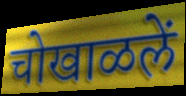
चोखाळलें